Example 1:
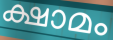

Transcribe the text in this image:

ക്ഷാമം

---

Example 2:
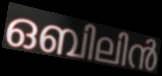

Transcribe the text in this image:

ഒബിലിൻ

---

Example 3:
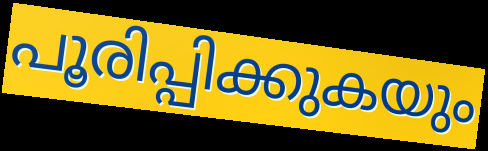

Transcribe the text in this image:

പൂരിപ്പിക്കുകയും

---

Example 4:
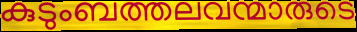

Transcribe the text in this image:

കുടുംബത്തലവന്മാരുടെ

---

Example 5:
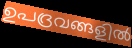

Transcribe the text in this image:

ഉപദ്രവങ്ങളിൽ